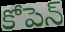
కోపెన్